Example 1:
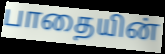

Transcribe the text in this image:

பாதையின்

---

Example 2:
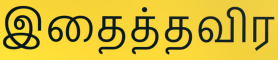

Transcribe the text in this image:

இதைத்தவிர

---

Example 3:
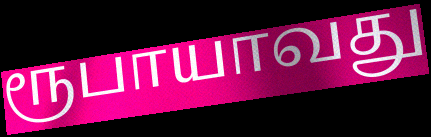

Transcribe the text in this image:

ரூபாயாவது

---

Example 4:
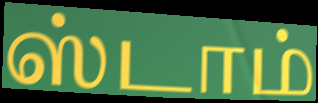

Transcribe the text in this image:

ஸ்டாம்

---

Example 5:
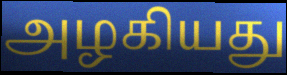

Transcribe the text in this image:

அழகியது